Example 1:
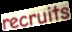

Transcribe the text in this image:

recruits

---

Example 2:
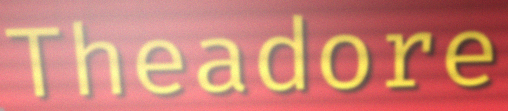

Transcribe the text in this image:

Theadore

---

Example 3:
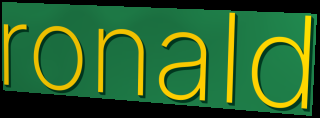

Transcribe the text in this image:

ronald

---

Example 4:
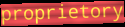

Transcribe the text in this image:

proprietory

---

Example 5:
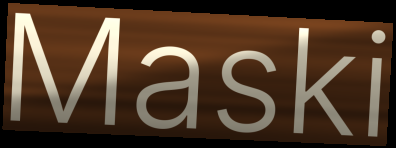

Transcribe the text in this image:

Maski